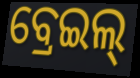
ବ୍ରେଇଲ୍